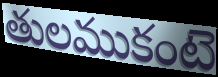
తులముకంటె